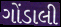
ગોંડાલી